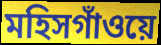
মহিসগাঁওয়ে